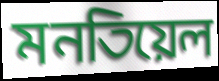
মনতিয়েল